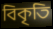
বিকৃতি